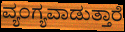
ವ್ಯಂಗ್ಯವಾಡುತ್ತಾರೆ